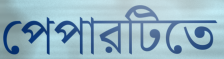
পেপারটিতে